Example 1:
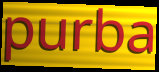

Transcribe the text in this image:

purba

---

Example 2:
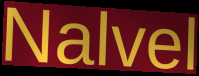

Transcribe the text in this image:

Nalvel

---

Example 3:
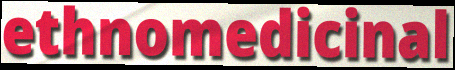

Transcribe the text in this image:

ethnomedicinal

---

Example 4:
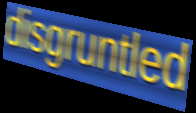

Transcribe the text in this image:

disgruntled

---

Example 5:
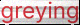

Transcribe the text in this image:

greying